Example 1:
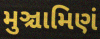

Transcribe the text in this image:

મુઞ્ચામિણં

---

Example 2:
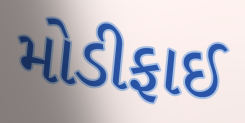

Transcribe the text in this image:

મોડીફાઈ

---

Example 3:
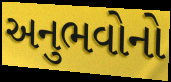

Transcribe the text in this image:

અનુભવોનો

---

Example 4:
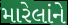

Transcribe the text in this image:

મારેલાંને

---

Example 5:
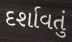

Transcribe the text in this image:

દર્શાવતું